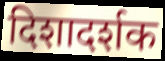
दिशादर्शक